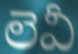
లెవీ